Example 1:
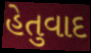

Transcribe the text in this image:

હેતુવાદ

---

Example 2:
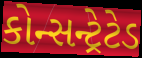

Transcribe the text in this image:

કોન્સન્ટ્રેટેડ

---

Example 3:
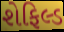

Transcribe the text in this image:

શેફિલ્ડ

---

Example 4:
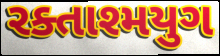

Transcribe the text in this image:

રક્તાશ્મયુગ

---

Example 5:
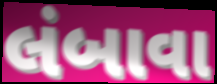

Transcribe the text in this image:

લંબાવા